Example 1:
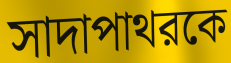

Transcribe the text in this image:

সাদাপাথরকে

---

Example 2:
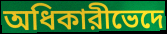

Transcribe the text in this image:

অধিকারীভেদে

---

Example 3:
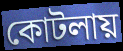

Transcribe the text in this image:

কোটলায়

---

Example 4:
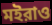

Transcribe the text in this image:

মইরাও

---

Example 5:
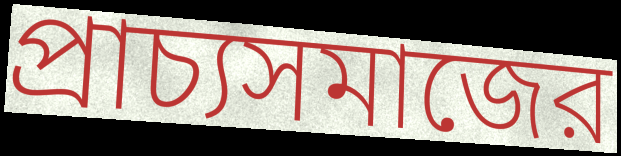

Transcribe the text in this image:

প্রাচ্যসমাজের